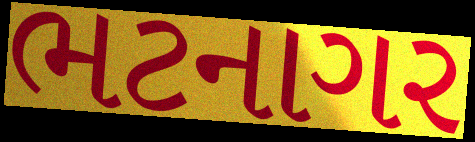
ભટનાગર